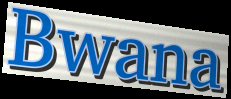
Bwana